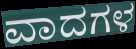
ವಾದಗಳ